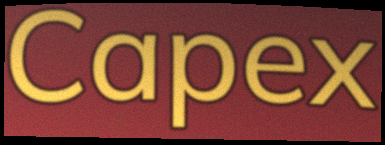
Capex